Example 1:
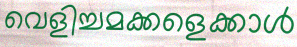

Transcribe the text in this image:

വെളിച്ചമക്കളെക്കാൾ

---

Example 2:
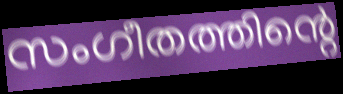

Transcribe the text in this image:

സംഗീതത്തിന്റെ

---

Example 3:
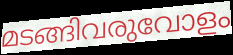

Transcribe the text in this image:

മടങ്ങിവരുവോളം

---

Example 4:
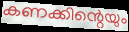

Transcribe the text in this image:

കണക്കിന്റെയും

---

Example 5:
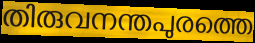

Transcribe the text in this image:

തിരുവനന്തപുരത്തെ